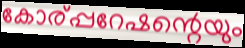
കോര്പ്പറേഷന്റെയും